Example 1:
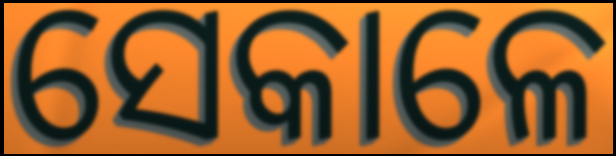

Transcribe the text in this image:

ସେକାଳେ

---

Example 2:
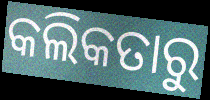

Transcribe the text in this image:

କଲିକତାରୁ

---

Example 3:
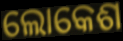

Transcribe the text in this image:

ଲୋକେଶ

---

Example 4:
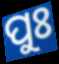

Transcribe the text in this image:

ପୁଃ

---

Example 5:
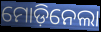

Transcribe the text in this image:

ମୋଡ଼ିନେଲା